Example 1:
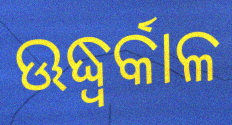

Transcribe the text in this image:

ଊଦ୍ଧ୍ୱର୍କାଳ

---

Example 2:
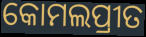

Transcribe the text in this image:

କୋମଲପ୍ରୀତ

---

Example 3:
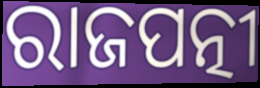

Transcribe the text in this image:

ରାଜପତ୍ନୀ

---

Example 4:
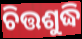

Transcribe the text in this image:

ଚିତ୍ତଶୁଦ୍ଧି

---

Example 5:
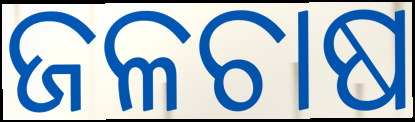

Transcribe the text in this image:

ଜଳଚାଷ